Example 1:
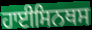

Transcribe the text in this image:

ਹਾਈਸਿਨਥਸ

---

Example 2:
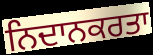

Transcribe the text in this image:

ਨਿਦਾਨਕਰਤਾ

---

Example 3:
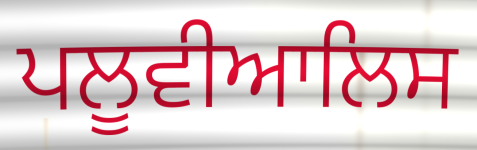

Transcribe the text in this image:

ਪਲੂਵੀਆਲਿਸ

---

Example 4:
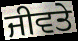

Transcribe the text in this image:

ਜੀਵਤੇ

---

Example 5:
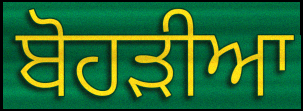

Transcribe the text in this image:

ਬੋਹੜੀਆ